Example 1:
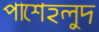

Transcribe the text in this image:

পাশেহলুদ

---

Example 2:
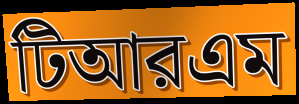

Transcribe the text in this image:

টিআরএম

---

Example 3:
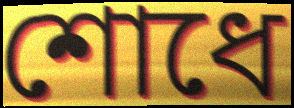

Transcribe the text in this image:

শোধে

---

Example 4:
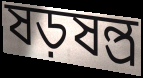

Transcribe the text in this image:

ষড়ষন্ত্র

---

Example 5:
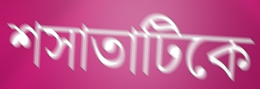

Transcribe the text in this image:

শসাতাটিকে